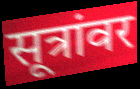
सूत्रांवर